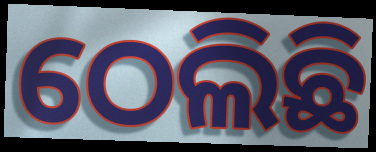
ଠେଲିଛି